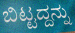
ಬಿಟ್ಟದ್ದನ್ನು